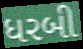
ધરબી